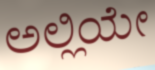
ಅಲ್ಲಿಯೇ